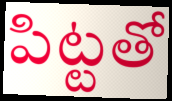
పిట్టతో